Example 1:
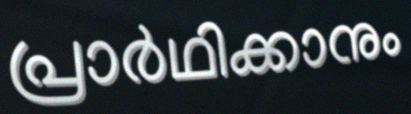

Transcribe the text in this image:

പ്രാർഥിക്കാനും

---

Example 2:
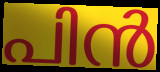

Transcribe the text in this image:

പിൻ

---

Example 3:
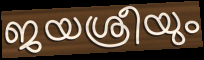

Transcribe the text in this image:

ജയശ്രീയും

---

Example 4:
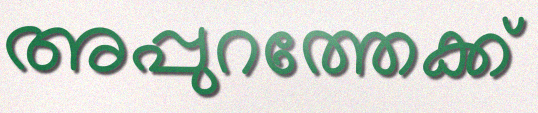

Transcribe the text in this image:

അപ്പുറത്തേക്ക്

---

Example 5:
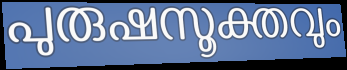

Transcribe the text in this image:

പുരുഷസൂക്തവും